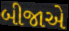
બીજાએ